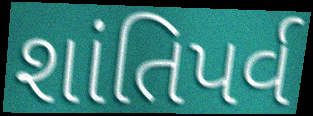
શાંતિપર્વ